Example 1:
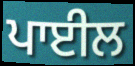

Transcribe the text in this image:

ਪਾਈਲ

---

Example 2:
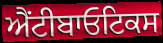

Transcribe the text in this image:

ਐਂਟੀਬਾਓਟਿਕਸ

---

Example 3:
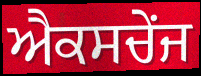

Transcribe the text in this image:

ਐਕਸਚੇਂਜ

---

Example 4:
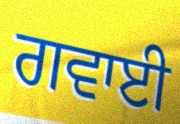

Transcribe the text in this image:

ਗਵਾਈ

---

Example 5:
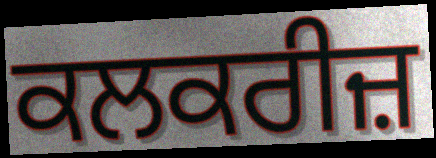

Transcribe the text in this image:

ਕਲਕਰੀਜ਼